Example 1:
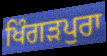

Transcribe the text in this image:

ਖਿੰਗੜਪੁਰਾ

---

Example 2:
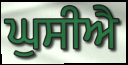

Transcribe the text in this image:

ਘੁਸੀਐ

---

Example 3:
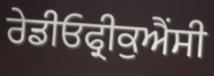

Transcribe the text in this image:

ਰੇਡੀਓਫ੍ਰੀਕੁਐਂਸੀ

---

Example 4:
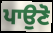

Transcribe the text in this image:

ਪਾਉਣੋ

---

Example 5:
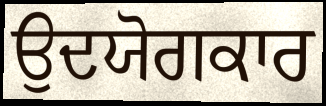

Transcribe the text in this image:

ਉਦਯੋਗਕਾਰ